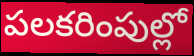
పలకరింపుల్లో